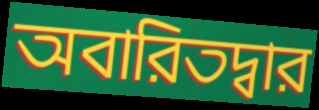
অবারিতদ্বার